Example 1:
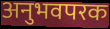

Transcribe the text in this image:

अनुभवपरक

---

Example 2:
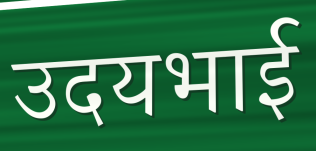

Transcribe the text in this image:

उदयभाई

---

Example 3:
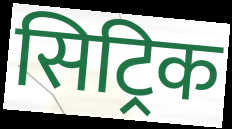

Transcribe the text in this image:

सिट्रिक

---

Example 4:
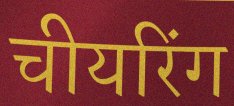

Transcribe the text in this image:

चीयरिंग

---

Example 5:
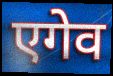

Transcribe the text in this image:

एगेव